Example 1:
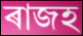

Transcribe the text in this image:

ৰাজহ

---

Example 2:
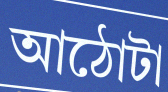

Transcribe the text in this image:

আঠোটা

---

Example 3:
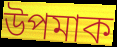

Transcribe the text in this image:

উপমাক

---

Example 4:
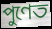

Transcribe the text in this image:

পুণেত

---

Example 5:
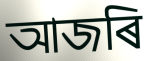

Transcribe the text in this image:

আজৰি